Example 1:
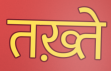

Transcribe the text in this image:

तख़्ते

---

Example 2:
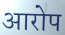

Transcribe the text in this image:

आरोप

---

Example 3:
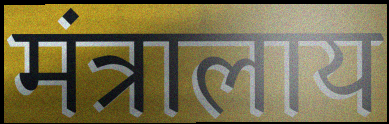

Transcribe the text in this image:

मंत्रालाय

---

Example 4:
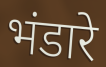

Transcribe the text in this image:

भंडारे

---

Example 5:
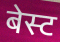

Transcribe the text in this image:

बेस्ट